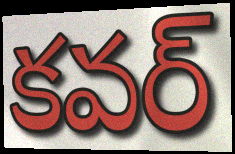
కవర్